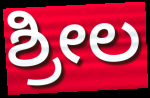
ಶ್ರೀಲ